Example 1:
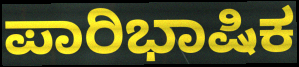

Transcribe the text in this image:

ಪಾರಿಭಾಷಿಕ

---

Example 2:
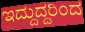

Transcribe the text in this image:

ಇದ್ದುದ್ದರಿಂದ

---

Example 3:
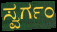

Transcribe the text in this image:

ಸ್ವರ್ಗಂ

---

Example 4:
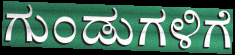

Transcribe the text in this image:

ಗುಂಡುಗಳಿಗೆ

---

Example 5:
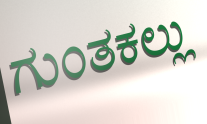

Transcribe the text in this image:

ಗುಂತಕಲ್ಲು